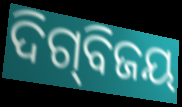
ଦିଗ୍‍ବିଜୟ